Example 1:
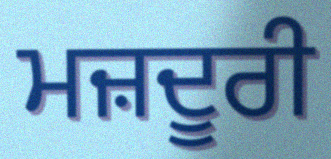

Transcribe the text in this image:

ਮਜ਼ਦੂਰੀ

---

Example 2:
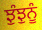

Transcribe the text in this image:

ਝੁੰਝੁਨੂੰ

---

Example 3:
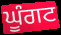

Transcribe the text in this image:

ਘੂੰਗਟ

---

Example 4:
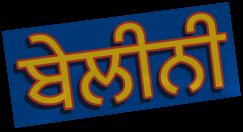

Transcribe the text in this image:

ਬੇਲੀਨੀ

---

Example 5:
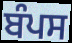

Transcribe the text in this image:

ਬੰਪਸ